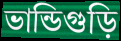
ভান্ডিগুড়ি